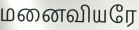
மனைவியரே